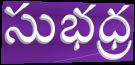
సుభధ్ర